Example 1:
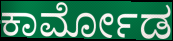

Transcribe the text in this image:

ಕಾರ್ಮೋಡ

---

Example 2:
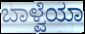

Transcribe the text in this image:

ಬಾಳ್ವೆಯಾ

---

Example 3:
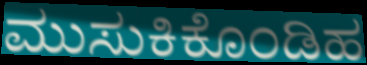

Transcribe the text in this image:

ಮುಸುಕಿಕೊಂಡಿಹ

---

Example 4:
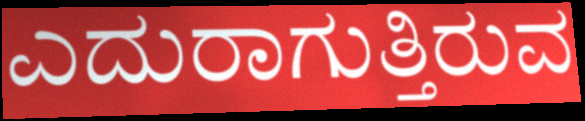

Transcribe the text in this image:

ಎದುರಾಗುತ್ತಿರುವ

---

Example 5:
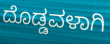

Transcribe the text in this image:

ದೊಡ್ಡವಳಾಗಿ